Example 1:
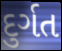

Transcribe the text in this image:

દુર્ગત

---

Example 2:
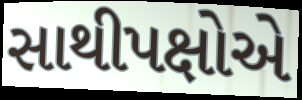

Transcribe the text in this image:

સાથીપક્ષોએ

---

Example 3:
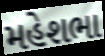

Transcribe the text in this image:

મહેશભા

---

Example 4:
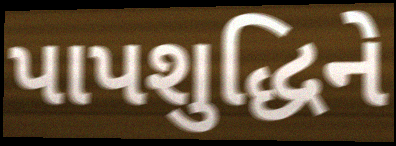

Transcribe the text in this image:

પાપશુદ્ધિને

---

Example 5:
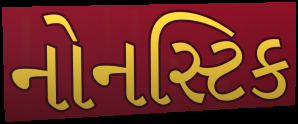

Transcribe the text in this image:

નોનસ્ટિક